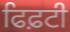
ਫਿਫ਼ਟੀ